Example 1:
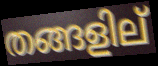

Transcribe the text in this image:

തങ്ങളില്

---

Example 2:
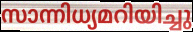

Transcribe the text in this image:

സാന്നിധ്യമറിയിച്ചു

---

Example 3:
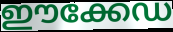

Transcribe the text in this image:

ഈക്കേഡ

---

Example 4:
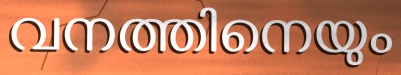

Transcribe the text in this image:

വനത്തിനെയും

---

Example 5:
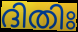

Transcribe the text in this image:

ദിതിഃ